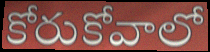
కోరుకోవాలో